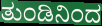
ತುಂಡಿನಿಂದ